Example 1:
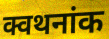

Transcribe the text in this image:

क्वथनांक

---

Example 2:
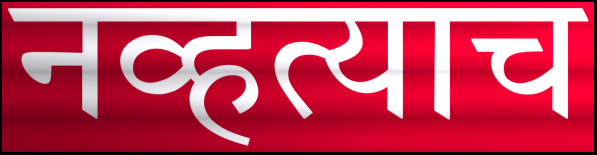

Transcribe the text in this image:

नव्हत्याच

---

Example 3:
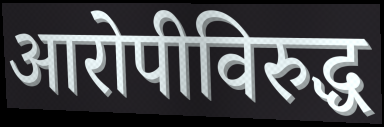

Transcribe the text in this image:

आरोपीविरुद्ध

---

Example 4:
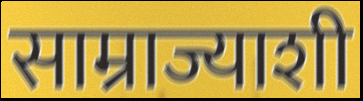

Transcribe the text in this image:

साम्राज्याशी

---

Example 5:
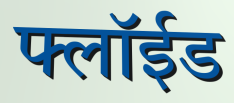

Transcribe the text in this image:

फ्लॉईड